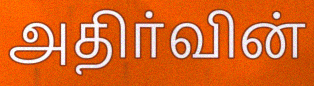
அதிர்வின்